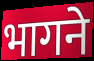
भागने